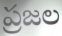
ప్రజల